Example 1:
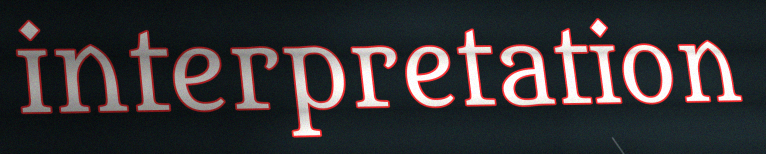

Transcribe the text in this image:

interpretation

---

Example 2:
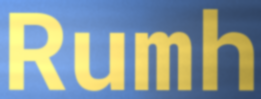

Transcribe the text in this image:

Rumh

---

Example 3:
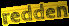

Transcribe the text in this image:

redden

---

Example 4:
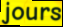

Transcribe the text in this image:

jours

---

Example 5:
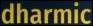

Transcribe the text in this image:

dharmic